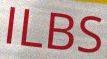
ILBS